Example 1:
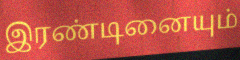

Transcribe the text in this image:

இரண்டினையும்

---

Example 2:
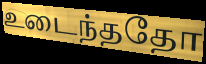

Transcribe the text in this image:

உடைந்ததோ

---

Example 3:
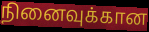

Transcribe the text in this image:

நினைவுக்கான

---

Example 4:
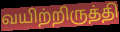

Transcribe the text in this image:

வயிற்றிருத்தி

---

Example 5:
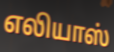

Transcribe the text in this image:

எலியாஸ்